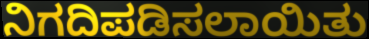
ನಿಗದಿಪಡಿಸಲಾಯಿತು